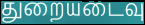
துறையடைவு